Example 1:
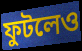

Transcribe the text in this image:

ফুটলেও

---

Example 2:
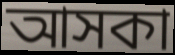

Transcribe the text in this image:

আসকা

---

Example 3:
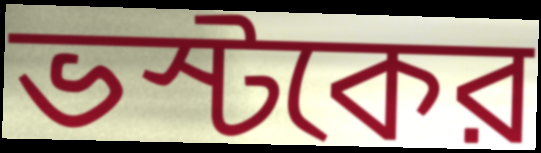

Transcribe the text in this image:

ভস্টকের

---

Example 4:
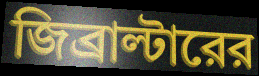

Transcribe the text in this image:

জিব্রাল্টারের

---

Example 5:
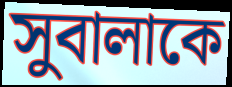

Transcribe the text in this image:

সুবালাকে